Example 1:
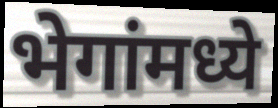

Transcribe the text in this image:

भेगांमध्ये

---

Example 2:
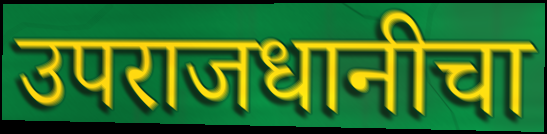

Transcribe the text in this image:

उपराजधानीचा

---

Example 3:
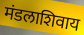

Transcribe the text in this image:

मंडलाशिवाय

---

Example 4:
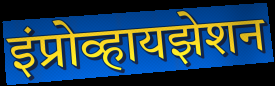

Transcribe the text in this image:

इंप्रोव्हायझेशन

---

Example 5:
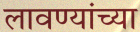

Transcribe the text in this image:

लावण्यांच्या